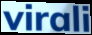
virali